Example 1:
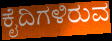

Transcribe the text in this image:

ಕೈದಿಗಳಿರುವ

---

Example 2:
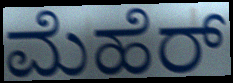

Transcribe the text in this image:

ಮೆಹೆರ್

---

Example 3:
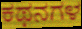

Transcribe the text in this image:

ಕಥನಗಳ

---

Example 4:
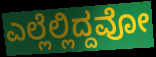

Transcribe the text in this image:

ಎಲ್ಲೆಲ್ಲಿದ್ದವೋ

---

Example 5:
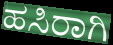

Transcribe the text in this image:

ಹಸಿರಾಗಿ